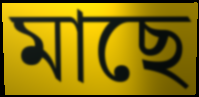
মাছে